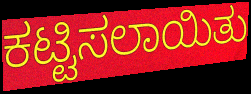
ಕಟ್ಟಿಸಲಾಯಿತು